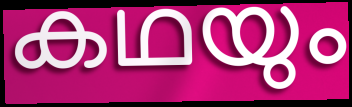
കഥയും